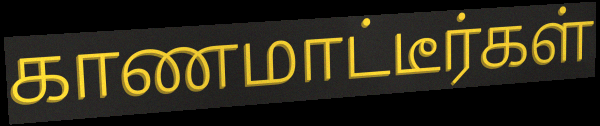
காணமாட்டீர்கள்